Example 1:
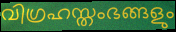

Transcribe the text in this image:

വിഗ്രഹസ്തംഭങ്ങളും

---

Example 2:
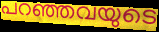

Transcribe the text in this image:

പറഞ്ഞവയുടെ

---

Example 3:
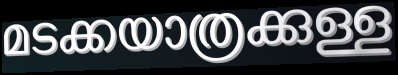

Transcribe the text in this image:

മടക്കയാത്രക്കുള്ള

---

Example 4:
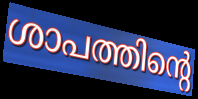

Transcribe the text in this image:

ശാപത്തിന്റെ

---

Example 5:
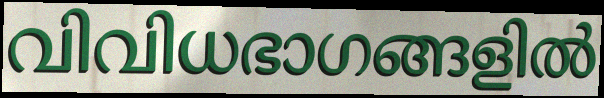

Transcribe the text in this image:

വിവിധഭാഗങ്ങളിൽ